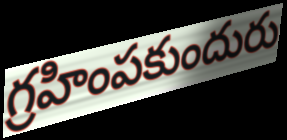
గ్రహింపకుందురు